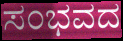
ಸಂಭವದ